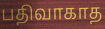
பதிவாகாத